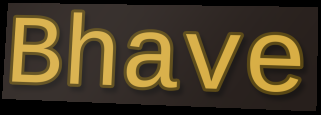
Bhave